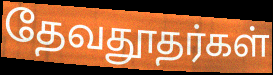
தேவதூதர்கள்